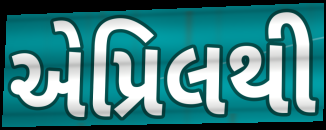
એપ્રિલથી